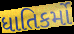
ધાતિકર્મો